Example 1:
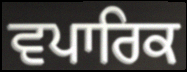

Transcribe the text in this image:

ਵਪਾਰਿਕ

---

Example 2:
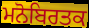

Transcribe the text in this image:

ਮਨੋਬਿਰਤਕ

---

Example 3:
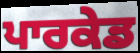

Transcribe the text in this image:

ਪਾਰਕੇਡ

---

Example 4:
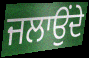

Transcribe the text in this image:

ਜਲਾਉਂਦੇ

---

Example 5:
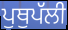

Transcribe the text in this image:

ਪੁਥੁਪੱਲੀ